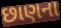
છાણના